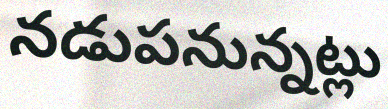
నడుపనున్నట్లు